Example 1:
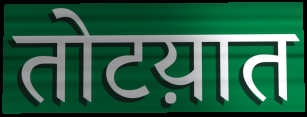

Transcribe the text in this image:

तोटय़ात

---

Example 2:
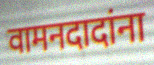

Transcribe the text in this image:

वामनदादांना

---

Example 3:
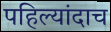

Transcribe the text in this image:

पहिल्यांदाच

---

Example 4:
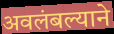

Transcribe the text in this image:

अवलंबल्याने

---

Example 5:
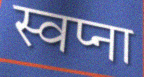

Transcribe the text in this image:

स्वप्ना